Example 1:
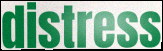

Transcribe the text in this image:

distress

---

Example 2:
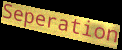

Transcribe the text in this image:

Seperation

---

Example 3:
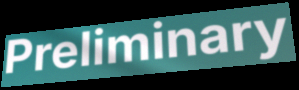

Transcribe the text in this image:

Preliminary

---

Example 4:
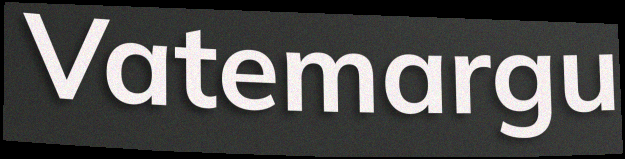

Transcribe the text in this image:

Vatemargu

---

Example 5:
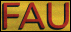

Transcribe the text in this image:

FAU